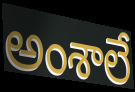
అంశాలే